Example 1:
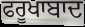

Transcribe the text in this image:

ਫਰੂਖਾਬਾਦ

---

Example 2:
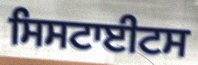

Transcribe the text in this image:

ਸਿਸਟਾਈਟਸ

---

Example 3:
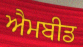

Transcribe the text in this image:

ਐਮਬੀਡ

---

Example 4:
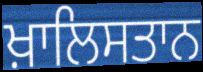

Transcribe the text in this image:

ਖ਼ਾਲਿਸਤਾਨ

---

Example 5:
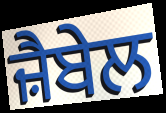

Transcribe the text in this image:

ਜ਼ੈਬੇਲ